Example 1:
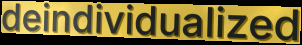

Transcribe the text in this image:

deindividualized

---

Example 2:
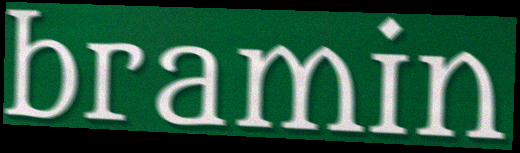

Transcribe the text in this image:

bramin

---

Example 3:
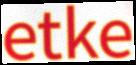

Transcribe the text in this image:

etke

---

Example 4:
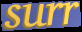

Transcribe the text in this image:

surr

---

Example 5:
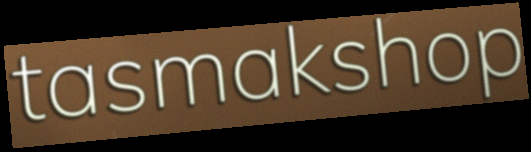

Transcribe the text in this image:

tasmakshop